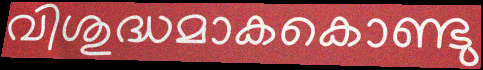
വിശുദ്ധമാകകൊണ്ടു